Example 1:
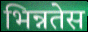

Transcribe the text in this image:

भिन्नतेस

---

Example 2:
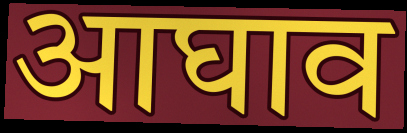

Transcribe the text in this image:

आघाव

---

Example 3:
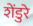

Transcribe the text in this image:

शेंडुरे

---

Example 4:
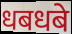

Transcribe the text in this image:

धबधबे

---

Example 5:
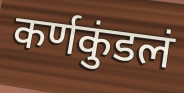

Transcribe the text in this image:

कर्णकुंडलं